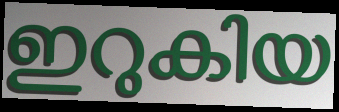
ഇറുകിയ